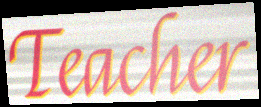
Teacher